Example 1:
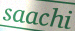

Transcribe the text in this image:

saachi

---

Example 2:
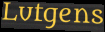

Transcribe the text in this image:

Lutgens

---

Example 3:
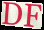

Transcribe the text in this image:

DF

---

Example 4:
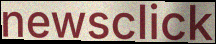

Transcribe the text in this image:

newsclick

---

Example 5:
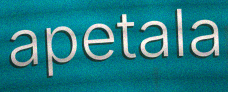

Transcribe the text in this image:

apetala